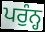
ਪਰੁੰਨ੍ਹ